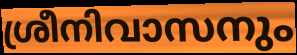
ശ്രീനിവാസനും